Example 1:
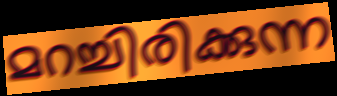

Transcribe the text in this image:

മറച്ചിരിക്കുന്ന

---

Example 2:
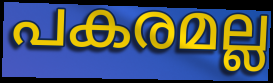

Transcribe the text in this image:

പകരമല്ല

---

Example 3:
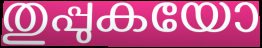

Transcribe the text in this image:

തുപ്പുകയോ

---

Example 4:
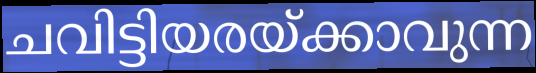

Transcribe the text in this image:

ചവിട്ടിയരയ്ക്കാവുന്ന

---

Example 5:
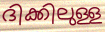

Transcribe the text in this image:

ദിക്കിലുള്ള